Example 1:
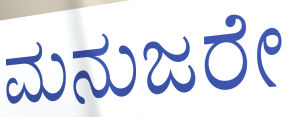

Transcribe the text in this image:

ಮನುಜರೇ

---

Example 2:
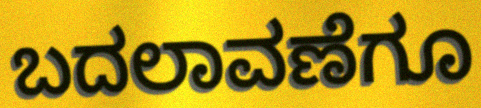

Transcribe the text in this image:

ಬದಲಾವಣೆಗೂ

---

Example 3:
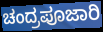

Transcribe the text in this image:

ಚಂದ್ರಪೂಜಾರಿ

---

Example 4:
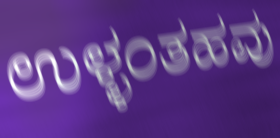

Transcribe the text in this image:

ಉಳ್ಳಂತಹವು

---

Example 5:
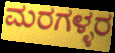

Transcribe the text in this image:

ಮರಗಳ್ಳರ